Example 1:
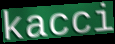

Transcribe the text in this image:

kacci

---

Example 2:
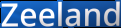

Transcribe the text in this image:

Zeeland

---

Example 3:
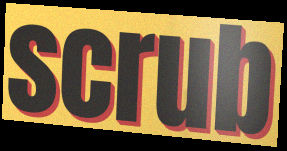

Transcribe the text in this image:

scrub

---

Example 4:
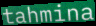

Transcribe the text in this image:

tahmina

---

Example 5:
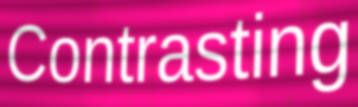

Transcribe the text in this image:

Contrasting